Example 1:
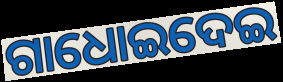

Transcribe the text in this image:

ଗାଧୋଇଦେଇ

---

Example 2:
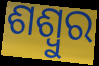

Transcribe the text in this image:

ଶଶ୍ୱୁର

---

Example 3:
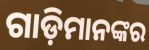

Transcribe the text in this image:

ଗାଡ଼ିମାନଙ୍କର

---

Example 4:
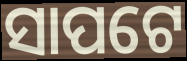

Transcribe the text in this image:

ସାପଟେ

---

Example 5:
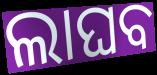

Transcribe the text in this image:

ଲାଘବ